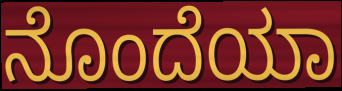
ನೊಂದೆಯಾ